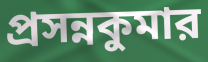
প্রসন্নকুমার